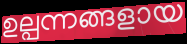
ഉല്പന്നങ്ങളായ